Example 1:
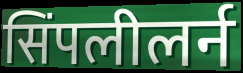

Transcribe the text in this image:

सिंपलीलर्न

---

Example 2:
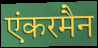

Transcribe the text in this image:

एंकरमैन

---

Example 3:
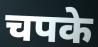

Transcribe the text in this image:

चपके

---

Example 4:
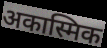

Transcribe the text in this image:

अकास्मिक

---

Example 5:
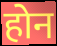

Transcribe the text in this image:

होन